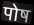
पोष